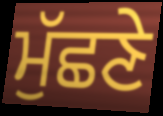
ਮੁੱਛਣੇ